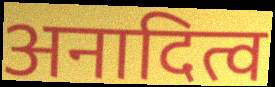
अनादित्व